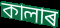
কালাৰ